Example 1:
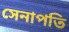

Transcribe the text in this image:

সেনাপতি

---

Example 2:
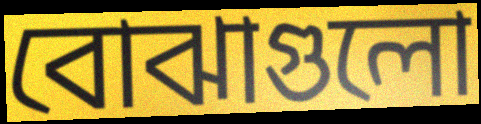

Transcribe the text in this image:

বোঝাগুলো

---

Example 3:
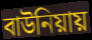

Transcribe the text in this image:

বাউনিয়ায়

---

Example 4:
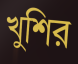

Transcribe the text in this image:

খুশির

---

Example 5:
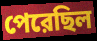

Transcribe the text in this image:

পেরেছিল